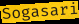
Sogasari